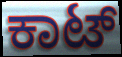
ಕಾಟ್